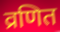
व्रणित